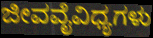
ಜೀವವೈವಿಧ್ಯಗಳು